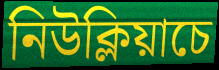
নিউক্লিয়াচে